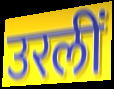
उरलीं